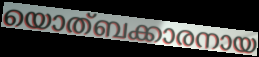
യൊത്ബക്കാരനായ